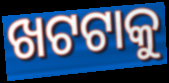
ଖଟଟାକୁ